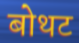
बोथट